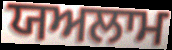
ਯਅਲਾਮ